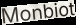
Monbiot